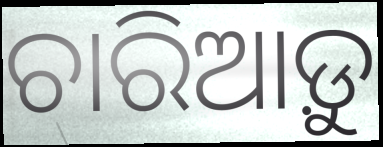
ଚାରିଆଡ଼ୁ